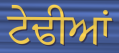
ਟੇਢੀਆਂ